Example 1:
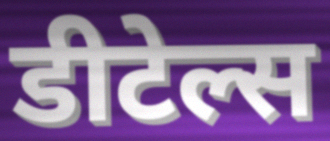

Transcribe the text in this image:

डीटेल्स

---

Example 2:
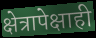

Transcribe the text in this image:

क्षेत्रापेक्षाही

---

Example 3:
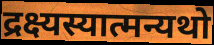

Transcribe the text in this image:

द्रक्ष्यस्यात्मन्यथो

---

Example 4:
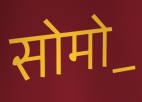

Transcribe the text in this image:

सोमो॒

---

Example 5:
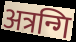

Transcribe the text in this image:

अत्रन्गि